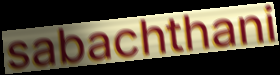
sabachthani